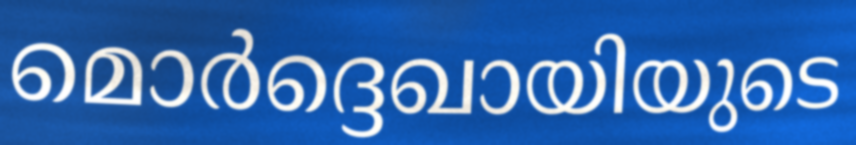
മൊർദ്ദെഖായിയുടെ